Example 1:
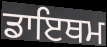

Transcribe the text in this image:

ਡਾਇਥਮ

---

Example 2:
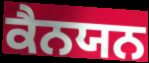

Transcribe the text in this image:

ਕੈਨਯਨ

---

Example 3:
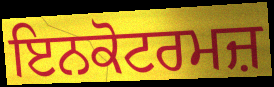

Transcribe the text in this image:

ਇਨਕੋਟਰਮਜ਼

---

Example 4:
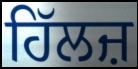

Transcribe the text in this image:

ਹਿੱਲਜ਼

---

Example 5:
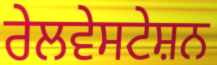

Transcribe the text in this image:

ਰੇਲਵੇਸਟੇਸ਼ਨ